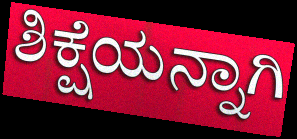
ಶಿಕ್ಷೆಯನ್ನಾಗಿ